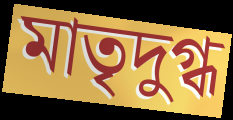
মাতৃদুগ্ধ